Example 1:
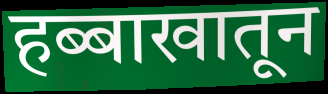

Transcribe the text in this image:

हब्बाखातून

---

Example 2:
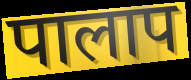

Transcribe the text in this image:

पालाप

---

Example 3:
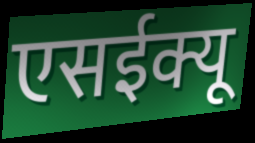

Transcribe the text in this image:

एसईक्यू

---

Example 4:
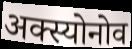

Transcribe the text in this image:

अक्स्योनोव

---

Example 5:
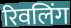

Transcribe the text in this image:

रिवलिंग